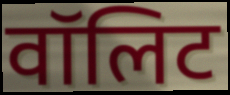
वॉलिट